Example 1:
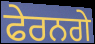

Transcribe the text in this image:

ਫੇਰਨਗੇ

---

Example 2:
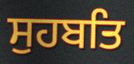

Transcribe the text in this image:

ਸੁਹਬਤਿ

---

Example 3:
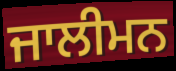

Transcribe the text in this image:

ਜਾਲੀਮਨ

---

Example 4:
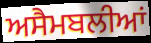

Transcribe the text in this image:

ਅਸੈਮਬਲੀਆਂ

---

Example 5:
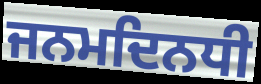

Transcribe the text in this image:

ਜਨਮਦਿਨਧੀ